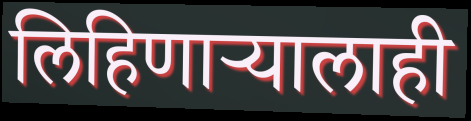
लिहिणाऱ्यालाही